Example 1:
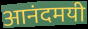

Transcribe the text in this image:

आनंदमयी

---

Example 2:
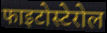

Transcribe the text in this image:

फाइटोस्टेरोल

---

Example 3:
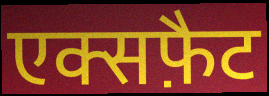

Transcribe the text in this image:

एक्सफ़ैट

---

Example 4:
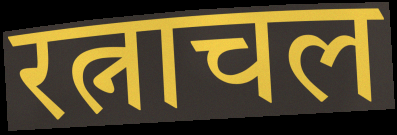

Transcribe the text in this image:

रत्नाचल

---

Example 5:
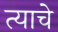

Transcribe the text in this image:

त्याचे